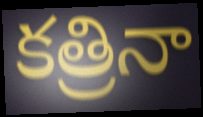
కత్రినా